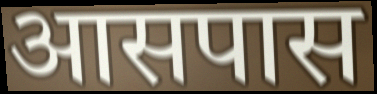
आसपास